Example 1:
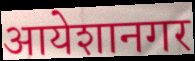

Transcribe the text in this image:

आयेशानगर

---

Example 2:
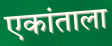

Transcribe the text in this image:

एकांताला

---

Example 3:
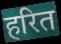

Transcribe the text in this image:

हरित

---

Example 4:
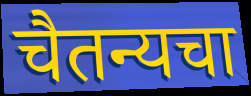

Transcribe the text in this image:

चैतन्यचा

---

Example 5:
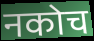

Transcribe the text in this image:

नकोच